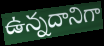
ఉన్నదానిగా